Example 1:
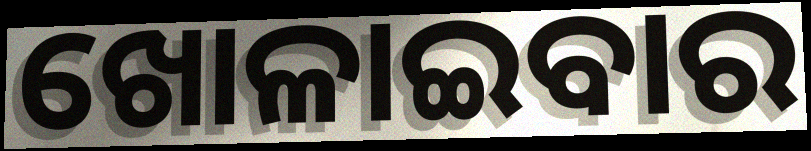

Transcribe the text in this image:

ଖୋଳାଇବାର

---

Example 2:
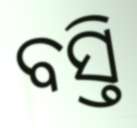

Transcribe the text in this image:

ବସ୍ତି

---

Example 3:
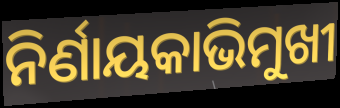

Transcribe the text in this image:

ନିର୍ଣାୟକାଭିମୁଖୀ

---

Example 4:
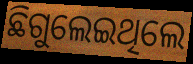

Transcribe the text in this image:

ଛିଗୁଲେଇଥିଲେ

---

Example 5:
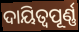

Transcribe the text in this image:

ଦାୟିତ୍ୱପୂର୍ଣ୍ଣ